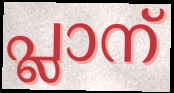
പ്ലാന്